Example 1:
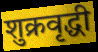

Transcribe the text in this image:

शुक्रवृद्धी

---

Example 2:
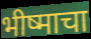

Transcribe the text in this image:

भीष्माचा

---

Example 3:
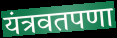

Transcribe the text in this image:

यंत्रवतपणा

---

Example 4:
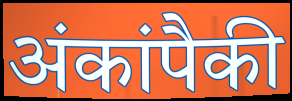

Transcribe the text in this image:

अंकांपैकी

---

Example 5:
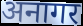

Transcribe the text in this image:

अनागर